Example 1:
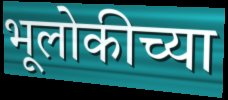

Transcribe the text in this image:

भूलोकीच्या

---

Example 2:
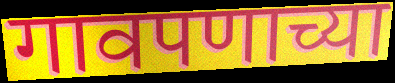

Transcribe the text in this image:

गावपणाच्या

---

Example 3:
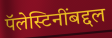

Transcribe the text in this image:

पॅलेस्टिनींबद्दल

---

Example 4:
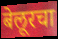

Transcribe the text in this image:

बेलूरचा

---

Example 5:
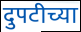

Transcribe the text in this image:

दुपटीच्या